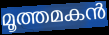
മൂത്തമകൻ